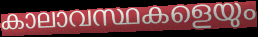
കാലാവസ്ഥകളെയും